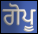
ਗੋਪੂ